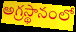
అగ్రస్థానంలో